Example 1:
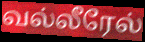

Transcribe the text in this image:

வல்லீரேல்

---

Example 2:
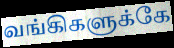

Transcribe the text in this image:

வங்கிகளுக்கே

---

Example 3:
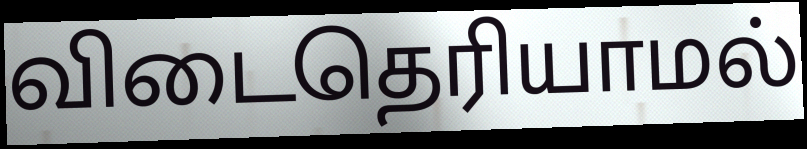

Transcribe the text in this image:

விடைதெரியாமல்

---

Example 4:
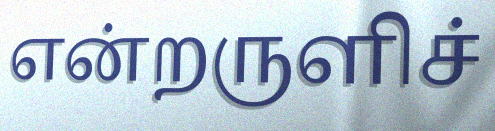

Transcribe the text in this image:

என்றருளிச்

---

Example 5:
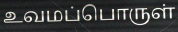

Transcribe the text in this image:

உவமப்பொருள்